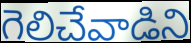
గెలిచేవాడిని